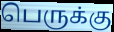
பெருக்கு